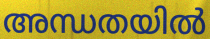
അന്ധതയിൽ